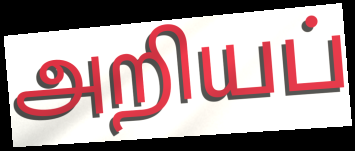
அறியப்